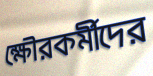
ক্ষৌরকর্মীদের